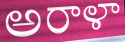
అరాళా